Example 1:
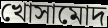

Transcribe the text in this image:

খোসামোদ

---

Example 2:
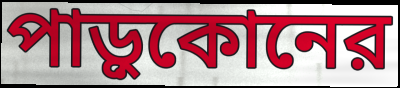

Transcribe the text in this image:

পাড়ুকোনের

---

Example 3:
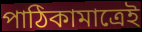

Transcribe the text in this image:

পাঠিকামাত্রেই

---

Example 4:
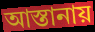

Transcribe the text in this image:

আস্তানায়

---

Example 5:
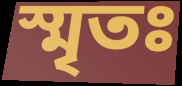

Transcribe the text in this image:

স্মৃতঃ